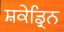
ਸ਼ਕੇਡ੍ਰਿਨ